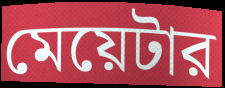
মেয়েটার